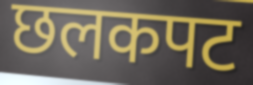
छलकपट